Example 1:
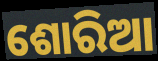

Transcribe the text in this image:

ଶୋରିଆ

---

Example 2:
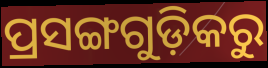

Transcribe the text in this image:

ପ୍ରସଙ୍ଗଗୁଡ଼ିକରୁ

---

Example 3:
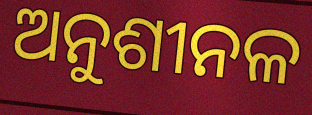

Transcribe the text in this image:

ଅନୁଶୀନଳ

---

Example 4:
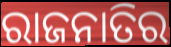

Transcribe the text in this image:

ରାଜନାତିର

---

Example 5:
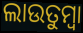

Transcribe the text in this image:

ଲାଉତୁମ୍ବା